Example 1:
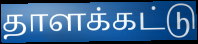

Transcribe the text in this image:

தாளக்கட்டு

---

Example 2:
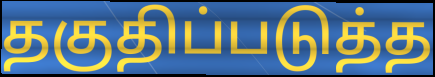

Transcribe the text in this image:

தகுதிப்படுத்த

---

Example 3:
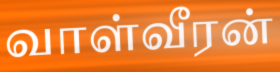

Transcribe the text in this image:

வாள்வீரன்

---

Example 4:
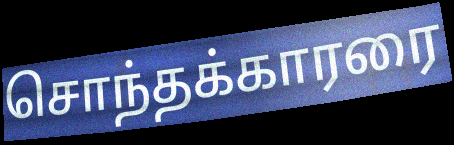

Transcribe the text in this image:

சொந்தக்காரரை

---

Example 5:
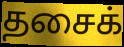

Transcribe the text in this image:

தசைக்